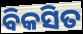
ବିକସିତ